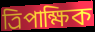
ত্রিপাক্ষিক